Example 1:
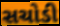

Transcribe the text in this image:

સચોડી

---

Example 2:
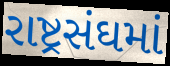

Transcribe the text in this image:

રાષ્ટ્રસંઘમાં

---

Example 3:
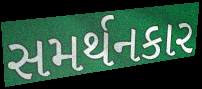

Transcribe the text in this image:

સમર્થનકાર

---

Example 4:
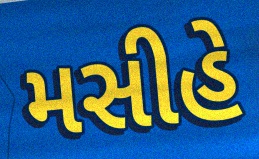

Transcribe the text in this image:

મસીહે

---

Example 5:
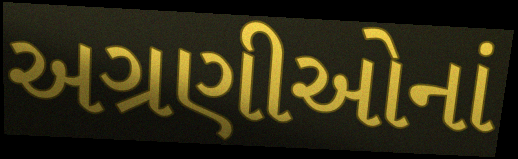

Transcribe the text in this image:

અગ્રણીઓનાં